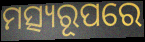
ମତ୍ସ୍ୟରୂପରେ